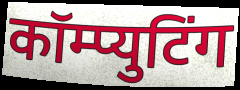
कॉम्प्युटिंग